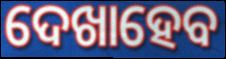
ଦେଖାହେବ